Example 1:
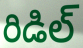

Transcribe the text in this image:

రిడిల్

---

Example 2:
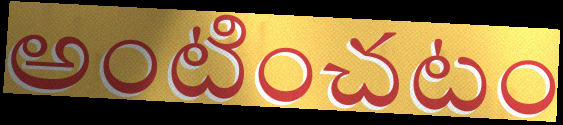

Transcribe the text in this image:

అంటించటం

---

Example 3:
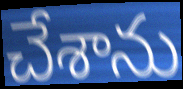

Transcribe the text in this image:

చేశాను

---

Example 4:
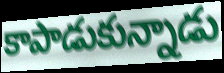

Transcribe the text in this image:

కాపాడుకున్నాడు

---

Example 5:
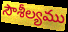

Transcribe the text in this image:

సౌశీల్యము